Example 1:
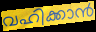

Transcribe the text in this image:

വഹിക്കാൻ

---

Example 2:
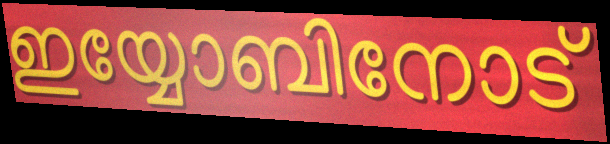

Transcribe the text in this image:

ഇയ്യോബിനോട്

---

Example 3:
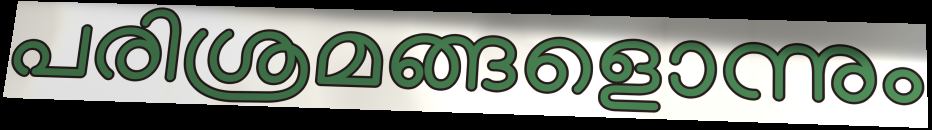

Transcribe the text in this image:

പരിശ്രമങ്ങളൊന്നും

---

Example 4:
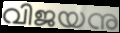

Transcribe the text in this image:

വിജയനു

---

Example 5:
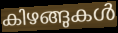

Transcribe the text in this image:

കിഴങ്ങുകൾ